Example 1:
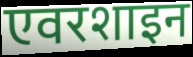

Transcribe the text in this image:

एवरशाइन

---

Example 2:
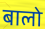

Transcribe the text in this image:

बालो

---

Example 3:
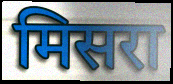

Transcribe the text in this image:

मिसरा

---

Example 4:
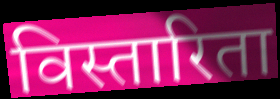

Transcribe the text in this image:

विस्तारिता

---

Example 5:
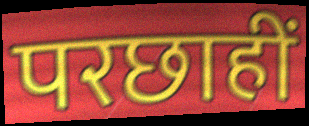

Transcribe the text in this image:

परछाहीं